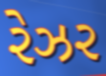
રેઝર